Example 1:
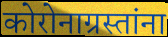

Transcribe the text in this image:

कोरोनाग्रस्तांना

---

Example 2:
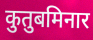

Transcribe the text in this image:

कुतुबमिनार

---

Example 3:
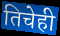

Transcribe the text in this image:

तिचेही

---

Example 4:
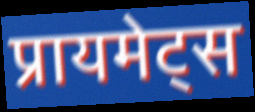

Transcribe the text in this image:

प्रायमेट्स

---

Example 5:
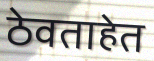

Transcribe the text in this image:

ठेवताहेत